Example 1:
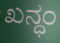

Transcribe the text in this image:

ಖನ್ಧಂ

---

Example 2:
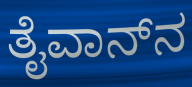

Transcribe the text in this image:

ತೈವಾನ್‌ನ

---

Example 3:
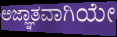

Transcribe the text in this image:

ಅಜ್ಞಾತವಾಗಿಯೇ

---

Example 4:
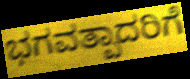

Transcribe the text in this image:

ಭಗವತ್ಪಾದರಿಗೆ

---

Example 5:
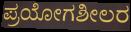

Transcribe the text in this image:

ಪ್ರಯೋಗಶೀಲರ